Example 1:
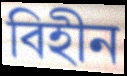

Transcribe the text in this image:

বিহীন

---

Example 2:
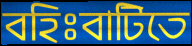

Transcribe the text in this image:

বহিঃবাটিতে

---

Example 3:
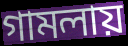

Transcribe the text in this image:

গামলায়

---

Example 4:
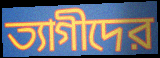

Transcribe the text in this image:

ত্যাগীদের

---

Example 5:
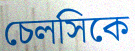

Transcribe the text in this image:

চেলসিকে